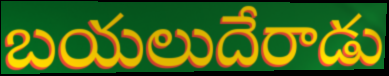
బయలుదేరాడు